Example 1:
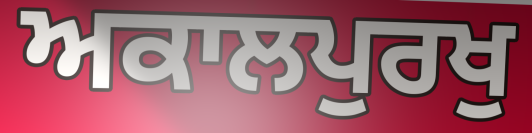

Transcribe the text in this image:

ਅਕਾਲਪੁਰਖੁ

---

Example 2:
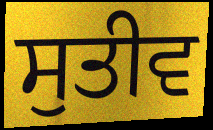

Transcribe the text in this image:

ਸੁਤੀਵ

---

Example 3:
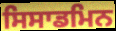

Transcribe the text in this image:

ਸਿਸਾਡਮਿਨ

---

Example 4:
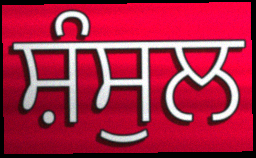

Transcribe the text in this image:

ਸ਼ੰਸੁਲ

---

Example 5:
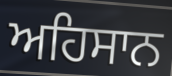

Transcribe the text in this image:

ਅਹਿਸਾਨ